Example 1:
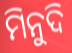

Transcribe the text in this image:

ମିନୁଦି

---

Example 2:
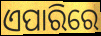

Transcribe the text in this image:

ଏପାରିରେ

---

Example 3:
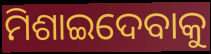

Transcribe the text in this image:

ମିଶାଇଦେବାକୁ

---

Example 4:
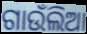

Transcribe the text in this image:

ଗାଉଁଲିଆ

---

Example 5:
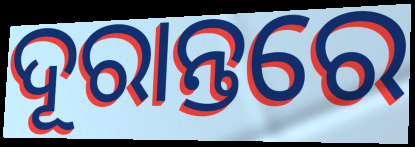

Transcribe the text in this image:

ଦୂରାନ୍ତରେ